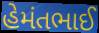
હેમંતભાઈ